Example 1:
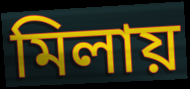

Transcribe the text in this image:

মিলায়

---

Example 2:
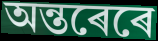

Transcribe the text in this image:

অন্তৰেৰে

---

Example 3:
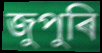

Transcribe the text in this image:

জুপুৰি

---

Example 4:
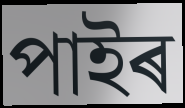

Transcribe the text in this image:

পাইৰ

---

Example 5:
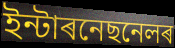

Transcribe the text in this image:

ইন্টাৰনেছনেলৰ